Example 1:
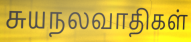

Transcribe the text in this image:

சுயநலவாதிகள்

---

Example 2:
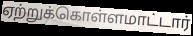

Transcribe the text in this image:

ஏற்றுக்கொள்ளமாட்டார்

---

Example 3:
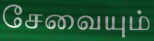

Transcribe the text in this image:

சேவையும்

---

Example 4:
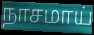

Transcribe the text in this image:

நாசமாய்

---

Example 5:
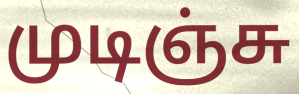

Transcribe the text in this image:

முடிஞ்சு